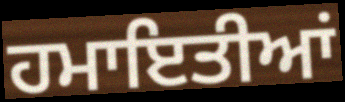
ਹਮਾਇਤੀਆਂ